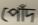
পোঁদ